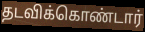
தடவிக்கொண்டார்